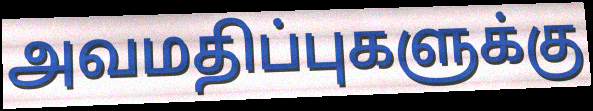
அவமதிப்புகளுக்கு